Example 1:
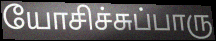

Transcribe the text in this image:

யோசிச்சுப்பாரு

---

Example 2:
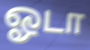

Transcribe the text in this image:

ஓடா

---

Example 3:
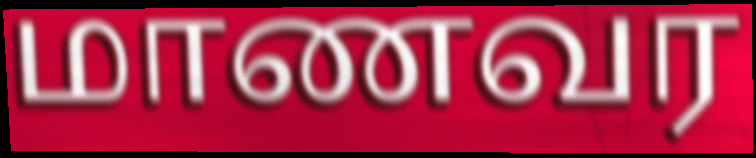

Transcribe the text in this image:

மாணவர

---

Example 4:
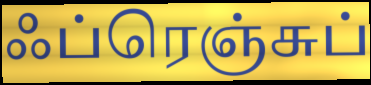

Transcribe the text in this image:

ஃப்ரெஞ்சுப்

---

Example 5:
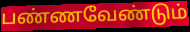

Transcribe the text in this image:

பண்ணவேண்டும்